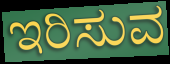
ಇರಿಸುವ